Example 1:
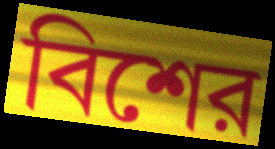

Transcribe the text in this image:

বিশের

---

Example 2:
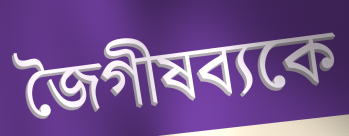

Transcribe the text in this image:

জৈগীষব্যকে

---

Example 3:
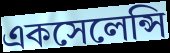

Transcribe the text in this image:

একসেলেন্সি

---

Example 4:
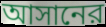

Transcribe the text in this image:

আসানের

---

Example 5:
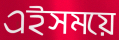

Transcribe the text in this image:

এইসময়ে